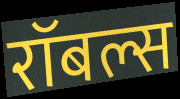
रॉबल्स